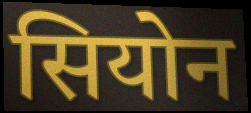
सियोन